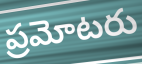
ప్రమోటరు